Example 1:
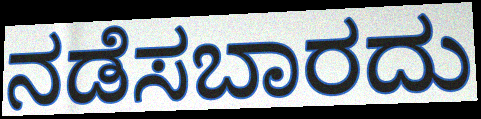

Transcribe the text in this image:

ನಡೆಸಬಾರದು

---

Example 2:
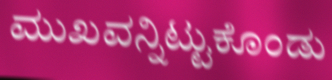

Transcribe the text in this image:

ಮುಖವನ್ನಿಟ್ಟುಕೊಂಡು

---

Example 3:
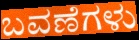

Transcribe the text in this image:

ಬವಣೆಗಳು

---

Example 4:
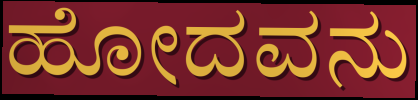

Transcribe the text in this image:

ಹೋದವನು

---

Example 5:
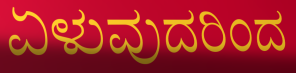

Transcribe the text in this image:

ಏಳುವುದರಿಂದ